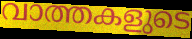
വാത്തകളുടെ